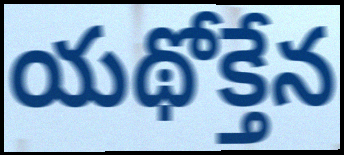
యథోక్తేన